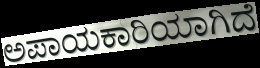
ಅಪಾಯಕಾರಿಯಾಗಿದೆ